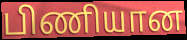
பிணியான